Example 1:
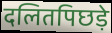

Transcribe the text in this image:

दलितपिछड़े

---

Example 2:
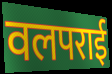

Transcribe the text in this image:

वलपराई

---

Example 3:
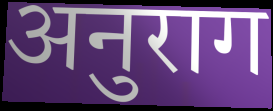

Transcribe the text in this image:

अनुराग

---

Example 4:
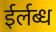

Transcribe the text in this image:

ईर्लब्ध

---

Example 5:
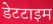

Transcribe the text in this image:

डेटटाइम